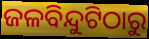
ଜଳବିନ୍ଦୁଟିଠାରୁ